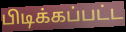
பிடிக்கப்பட்ட